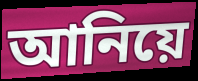
আনিয়ে